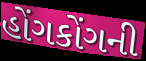
હોંગકોંગની